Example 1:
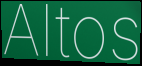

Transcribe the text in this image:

Altos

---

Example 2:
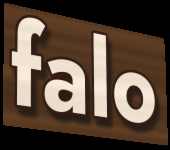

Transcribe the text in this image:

falo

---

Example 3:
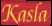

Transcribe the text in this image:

Kasla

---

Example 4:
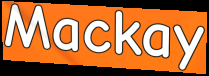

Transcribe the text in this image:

Mackay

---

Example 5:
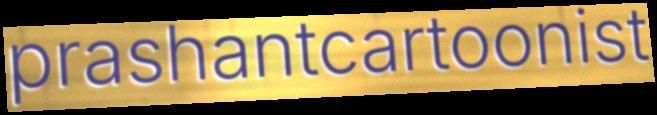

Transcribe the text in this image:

prashantcartoonist